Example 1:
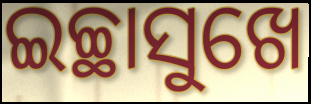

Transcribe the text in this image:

ଇଚ୍ଛାସୁଖେ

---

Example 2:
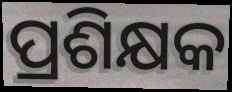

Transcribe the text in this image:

ପ୍ରଶିକ୍ଷକ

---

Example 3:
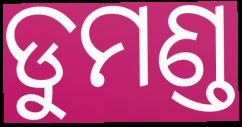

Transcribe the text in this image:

ଡୁମଣ୍ଡ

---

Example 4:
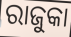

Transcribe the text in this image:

ରାଜୁକା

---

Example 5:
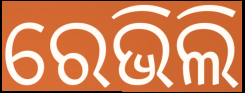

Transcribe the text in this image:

ରେଭିଲି